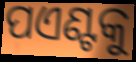
ପଏଣ୍ଟକୁ